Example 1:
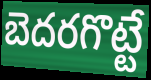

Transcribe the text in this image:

బెదరగొట్టే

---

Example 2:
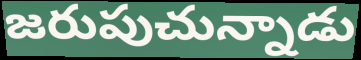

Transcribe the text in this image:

జరుపుచున్నాడు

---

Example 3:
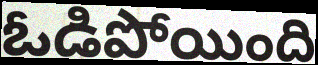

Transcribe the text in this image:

ఓడిపోయింది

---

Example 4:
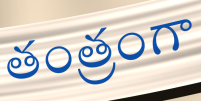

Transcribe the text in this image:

తంత్రంగా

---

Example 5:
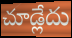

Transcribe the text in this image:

చూడ్లేదు